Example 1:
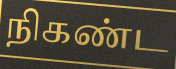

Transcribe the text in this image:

நிகண்ட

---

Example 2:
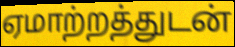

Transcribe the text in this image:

ஏமாற்றத்துடன்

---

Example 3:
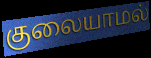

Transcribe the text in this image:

குலையாமல்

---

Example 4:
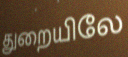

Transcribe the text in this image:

துறையிலே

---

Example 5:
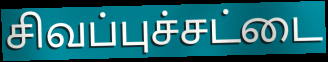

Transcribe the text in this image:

சிவப்புச்சட்டை